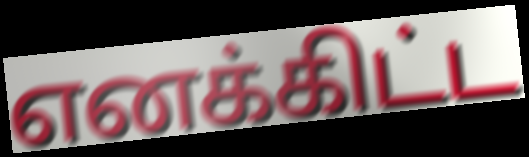
எனக்கிட்ட